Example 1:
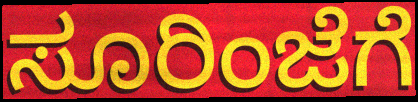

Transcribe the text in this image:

ಸೂರಿಂಜೆಗೆ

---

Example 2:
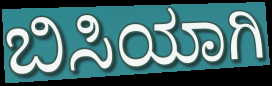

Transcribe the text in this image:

ಬಿಸಿಯಾಗಿ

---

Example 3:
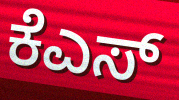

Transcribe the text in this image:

ಕೆಎಸ್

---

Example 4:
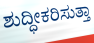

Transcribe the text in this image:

ಶುದ್ಧೀಕರಿಸುತ್ತಾ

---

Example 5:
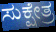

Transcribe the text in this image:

ಸುಕ್ಷೇತ್ರ